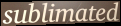
sublimated